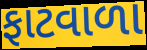
ફાટવાળા